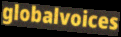
globalvoices